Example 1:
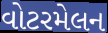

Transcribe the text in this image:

વોટરમેલન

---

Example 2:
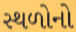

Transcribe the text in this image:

સ્થળોનો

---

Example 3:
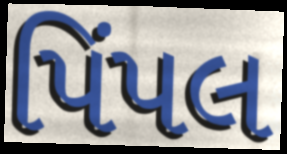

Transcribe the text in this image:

પિંપલ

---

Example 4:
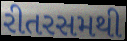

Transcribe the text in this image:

રીતરસમથી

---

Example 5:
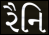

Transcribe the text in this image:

રૈનિ